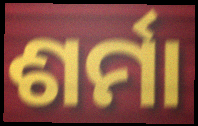
ଶର୍ମା